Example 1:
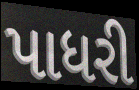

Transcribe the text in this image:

પાધરી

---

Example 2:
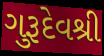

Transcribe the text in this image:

ગુરૂદેવશ્રી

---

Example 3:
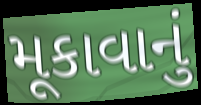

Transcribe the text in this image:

મૂકાવાનું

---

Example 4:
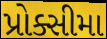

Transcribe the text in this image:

પ્રોક્સીમા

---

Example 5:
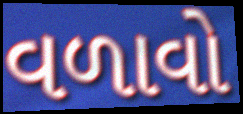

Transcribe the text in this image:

વળાવો